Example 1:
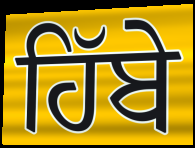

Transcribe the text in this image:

ਹਿੱਬੇ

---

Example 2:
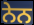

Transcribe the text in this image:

ਨੇਨ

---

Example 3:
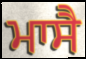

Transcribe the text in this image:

ਮਾਸੈ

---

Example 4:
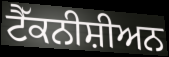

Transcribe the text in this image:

ਟੈੱਕਨੀਸ਼ੀਅਨ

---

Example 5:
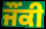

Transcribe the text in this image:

ਜੌਂਕੀ